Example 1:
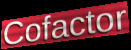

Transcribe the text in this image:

Cofactor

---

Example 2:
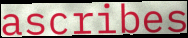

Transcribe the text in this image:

ascribes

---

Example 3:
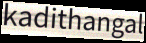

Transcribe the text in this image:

kadithangal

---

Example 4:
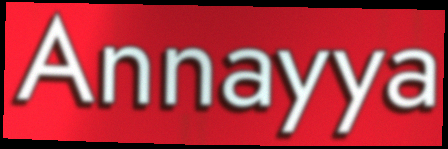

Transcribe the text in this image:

Annayya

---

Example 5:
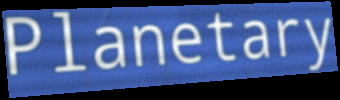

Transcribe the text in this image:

Planetary